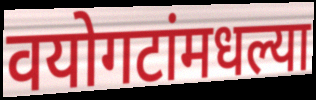
वयोगटांमधल्या